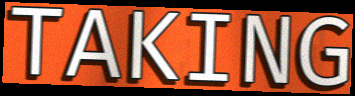
TAKING